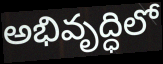
అభివృద్ధిలో